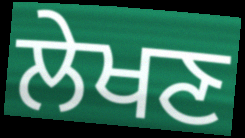
ਲੇਖਣ